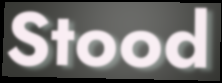
Stood